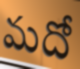
మదో